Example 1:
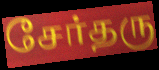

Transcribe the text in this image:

சேர்தரு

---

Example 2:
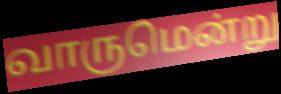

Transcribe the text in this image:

வாருமென்று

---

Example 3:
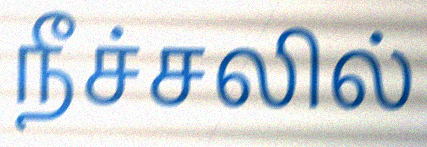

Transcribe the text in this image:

நீச்சலில்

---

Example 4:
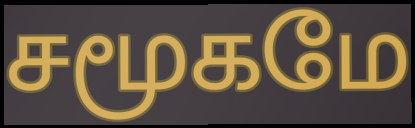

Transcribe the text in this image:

சமூகமே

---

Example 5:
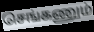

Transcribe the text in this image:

செங்கணும்